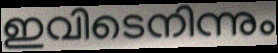
ഇവിടെനിന്നും